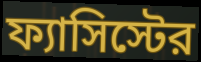
ফ্যাসিস্টের